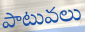
పాటువలు